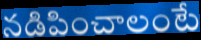
నడిపించాలంటే